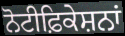
ਨੋਟੀਫ਼ਿਕੇਸ਼ਨਾਂ